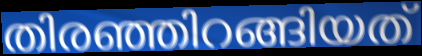
തിരഞ്ഞിറങ്ങിയത്